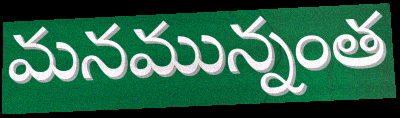
మనమున్నంత